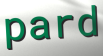
pard